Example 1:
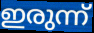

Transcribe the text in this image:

ഇരുന്ന്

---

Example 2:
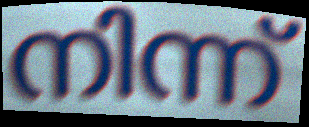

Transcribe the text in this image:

നിന്ന്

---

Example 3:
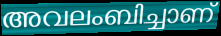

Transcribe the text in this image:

അവലംബിച്ചാണ്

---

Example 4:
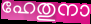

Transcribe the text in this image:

ഹേതുനാ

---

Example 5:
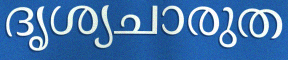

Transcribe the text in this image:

ദൃശ്യചാരുത